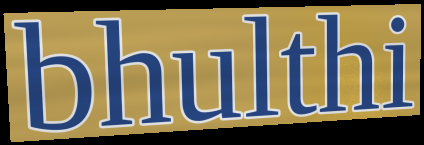
bhulthi